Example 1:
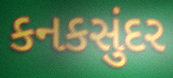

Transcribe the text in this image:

કનકસુંદર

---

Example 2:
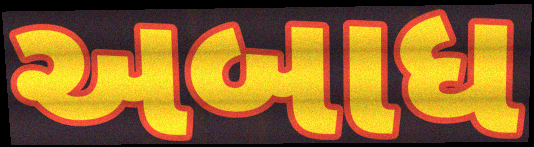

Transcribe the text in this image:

અબાધ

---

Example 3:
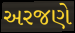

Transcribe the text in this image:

અરજણે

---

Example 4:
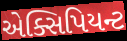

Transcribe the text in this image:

એક્સિપિયન્ટ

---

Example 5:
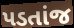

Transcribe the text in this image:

પડતાંજ